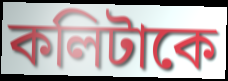
কলিটাকে